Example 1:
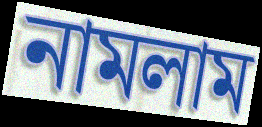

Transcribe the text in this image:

নামলাম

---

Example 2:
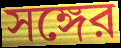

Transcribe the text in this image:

সঙ্গের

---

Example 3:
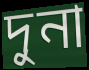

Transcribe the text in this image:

দুনা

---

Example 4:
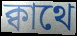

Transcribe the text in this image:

ক্বাথে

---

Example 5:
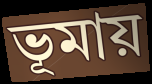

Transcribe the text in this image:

ভূমায়